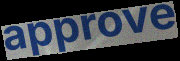
approve